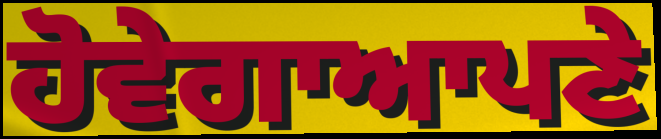
ਹੋਵੇਗਾਆਪਣੇ